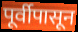
पूर्वीपासून